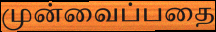
முன்வைப்பதை